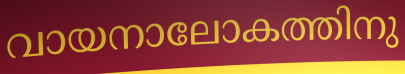
വായനാലോകത്തിനു